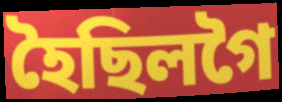
হৈছিলগৈ